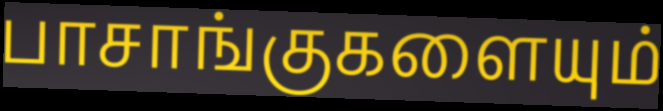
பாசாங்குகளையும்